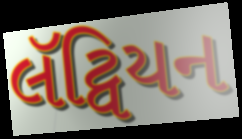
લૅટ્વિયન